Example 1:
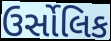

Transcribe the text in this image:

ઉર્સોલિક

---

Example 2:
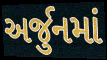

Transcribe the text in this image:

અર્જુનમાં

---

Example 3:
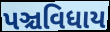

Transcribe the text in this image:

પઞ્ચવિધાય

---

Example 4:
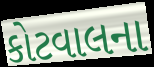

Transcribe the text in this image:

કોટવાલના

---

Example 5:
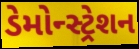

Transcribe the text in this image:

ડેમોન્સ્ટ્રેશન